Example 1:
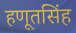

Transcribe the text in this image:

हणूतसिंह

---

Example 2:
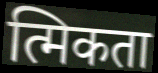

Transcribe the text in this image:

त्मिकता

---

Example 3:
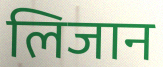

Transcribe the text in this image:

लिजान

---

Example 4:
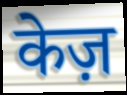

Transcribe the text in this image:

केज़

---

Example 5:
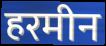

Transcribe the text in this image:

हरमीन